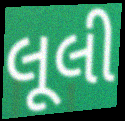
લૂલી